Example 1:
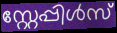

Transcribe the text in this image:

സ്റ്റേപ്പിൾസ്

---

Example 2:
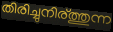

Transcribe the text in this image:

തിരിച്ചുനിര്ത്തുന്ന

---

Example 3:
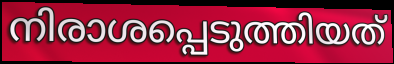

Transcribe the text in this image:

നിരാശപ്പെടുത്തിയത്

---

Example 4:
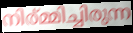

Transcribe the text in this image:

നിര്മ്മിച്ചിരുന്ന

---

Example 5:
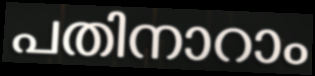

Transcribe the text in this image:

പതിനാറാം